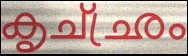
കൃച്ഛ്രം